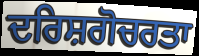
ਦਰਿਸ਼ਗੋਚਰਤਾ